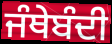
ਜੰਥੇਬੰਦੀ